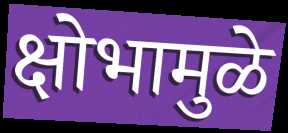
क्षोभामुळे